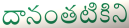
దానంతటికిని